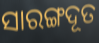
ସାରଙ୍ଗଦୂତ